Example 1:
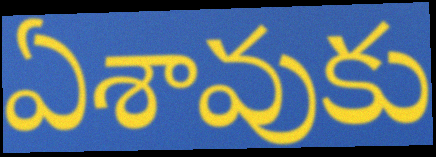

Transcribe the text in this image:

ఏశావుకు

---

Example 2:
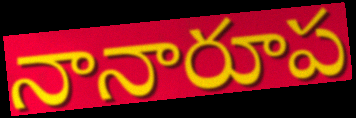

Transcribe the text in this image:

నానారూప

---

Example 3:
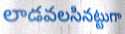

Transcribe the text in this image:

లాడవలసినట్టుగా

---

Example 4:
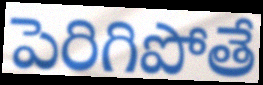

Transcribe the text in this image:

పెరిగిపోతే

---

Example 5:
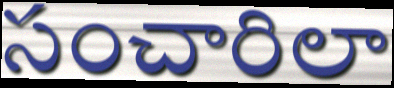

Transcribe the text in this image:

సంచారిలా